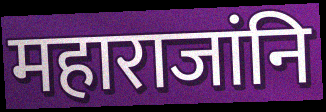
महाराजांनि